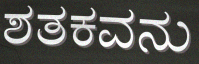
ಶತಕವನು